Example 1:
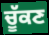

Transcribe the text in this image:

ਚੂੱਕਣ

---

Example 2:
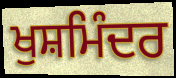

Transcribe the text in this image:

ਖੁਸ਼ਮਿੰਦਰ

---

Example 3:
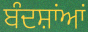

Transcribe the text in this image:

ਬੰਦਸ਼ਾਂਆਂ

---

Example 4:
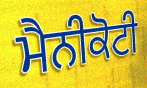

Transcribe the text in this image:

ਮੈਨੀਕੋਟੀ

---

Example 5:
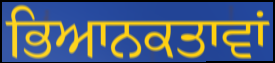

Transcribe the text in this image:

ਭਿਆਨਕਤਾਵਾਂ